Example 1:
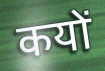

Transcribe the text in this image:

कयों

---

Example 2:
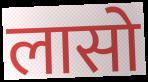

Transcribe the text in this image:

लासो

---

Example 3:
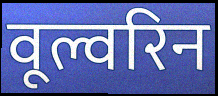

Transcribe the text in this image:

वूल्वरिन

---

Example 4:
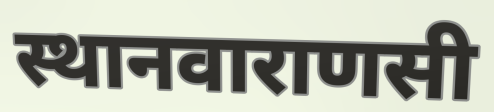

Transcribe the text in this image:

स्थानवाराणसी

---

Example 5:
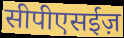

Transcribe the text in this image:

सीपीएसईज़